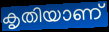
കൃതിയാണ്